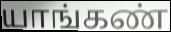
யாங்கண்